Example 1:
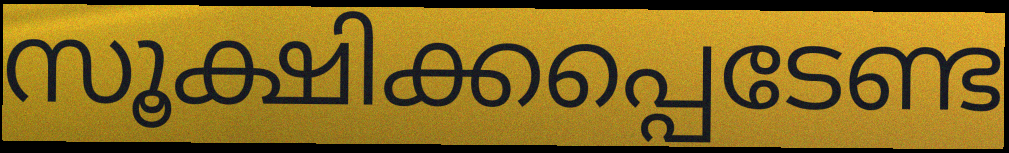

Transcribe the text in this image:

സൂക്ഷിക്കപ്പെടേണ്ട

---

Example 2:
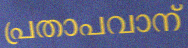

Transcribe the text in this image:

പ്രതാപവാന്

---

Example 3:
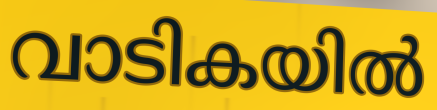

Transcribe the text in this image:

വാടികയിൽ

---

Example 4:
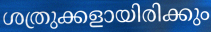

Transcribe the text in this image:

ശത്രുക്കളായിരിക്കും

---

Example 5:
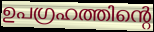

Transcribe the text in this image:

ഉപഗ്രഹത്തിന്റെ